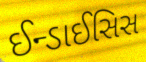
ઈન્ડાઈસિસ